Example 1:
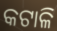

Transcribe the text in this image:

କଟାଳି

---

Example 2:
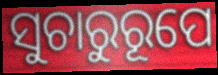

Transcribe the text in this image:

ସୁଚାରୁରୂପେ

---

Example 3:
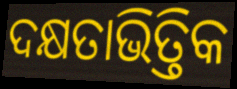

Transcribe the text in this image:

ଦକ୍ଷତାଭିତ୍ତିକ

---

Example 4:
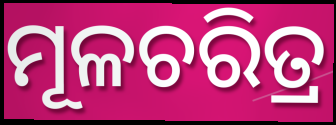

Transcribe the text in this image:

ମୂଳଚରିତ୍ର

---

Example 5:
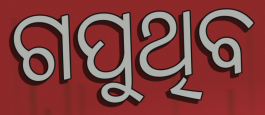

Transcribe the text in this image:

ଗପୁଥିବ